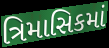
ત્રિમાસિકમાં